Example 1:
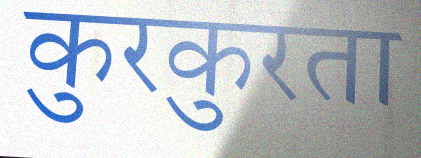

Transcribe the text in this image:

कुरकुरता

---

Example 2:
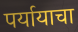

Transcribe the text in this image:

पर्यायाचा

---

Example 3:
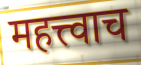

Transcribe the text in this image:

महत्त्वाच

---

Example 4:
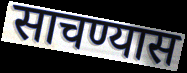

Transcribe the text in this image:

साचण्यास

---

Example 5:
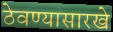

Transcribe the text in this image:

ठेवण्यासारखे